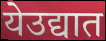
येउद्यात